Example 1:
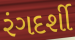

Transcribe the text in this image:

રંગદર્શી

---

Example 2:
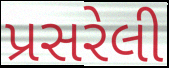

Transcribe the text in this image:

પ્રસરેલી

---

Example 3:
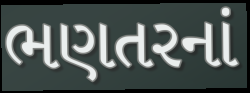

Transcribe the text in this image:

ભણતરનાં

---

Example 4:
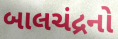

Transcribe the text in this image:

બાલચંદ્રનો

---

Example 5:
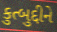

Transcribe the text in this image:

કુત્બુદ્દીને